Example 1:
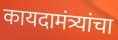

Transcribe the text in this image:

कायदामंत्र्यांचा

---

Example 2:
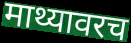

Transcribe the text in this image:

माथ्यावरच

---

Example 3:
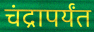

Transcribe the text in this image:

चंद्रापर्यंत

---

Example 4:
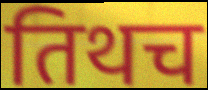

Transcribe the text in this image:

तिथच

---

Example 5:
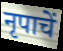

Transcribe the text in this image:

नृपाचें